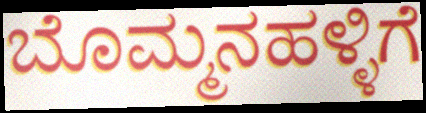
ಬೊಮ್ಮನಹಳ್ಳಿಗೆ